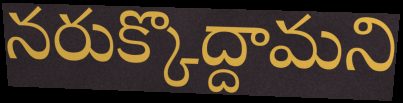
నరుక్కొద్దామని